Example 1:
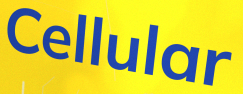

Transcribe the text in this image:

Cellular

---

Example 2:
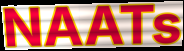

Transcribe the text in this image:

NAATs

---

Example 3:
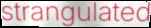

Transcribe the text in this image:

strangulated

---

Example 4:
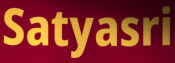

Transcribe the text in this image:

Satyasri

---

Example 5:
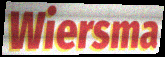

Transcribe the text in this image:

Wiersma